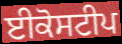
ਈਕੋਸਟੀਪ